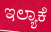
ಇಲ್ಯಾಕೆ